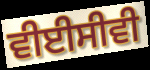
ਵੀਈਸੀਵੀ